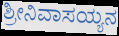
ಶ್ರೀನಿವಾಸಯ್ಯನ